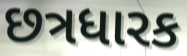
છત્રધારક